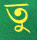
তু